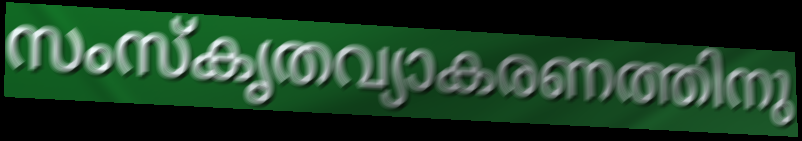
സംസ്കൃതവ്യാകരണത്തിനു